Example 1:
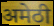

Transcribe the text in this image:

अमेठी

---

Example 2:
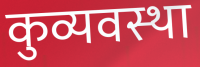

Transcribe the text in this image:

कुव्यवस्था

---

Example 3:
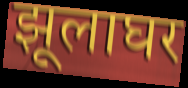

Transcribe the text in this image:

झूलाघर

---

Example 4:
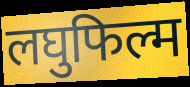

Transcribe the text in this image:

लघुफिल्म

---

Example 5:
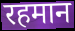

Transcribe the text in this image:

रहमान